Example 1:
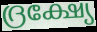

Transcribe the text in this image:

ദ്രക്ഷ്യേ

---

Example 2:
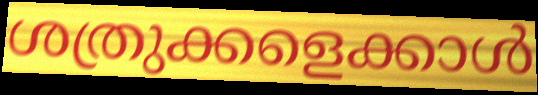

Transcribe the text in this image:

ശത്രുക്കളെക്കാൾ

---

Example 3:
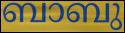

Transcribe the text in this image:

ബാബു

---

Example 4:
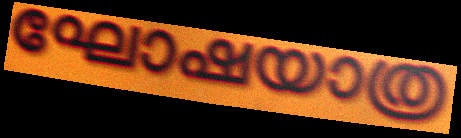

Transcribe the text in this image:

ഘോഷയാത്ര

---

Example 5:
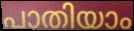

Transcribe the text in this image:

പാതിയാം